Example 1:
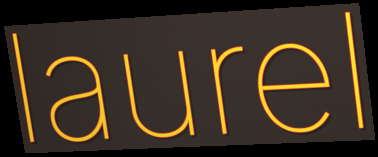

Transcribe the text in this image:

laurel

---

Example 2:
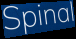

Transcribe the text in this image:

Spinal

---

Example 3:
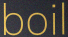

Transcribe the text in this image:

boil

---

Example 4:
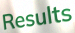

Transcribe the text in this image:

Results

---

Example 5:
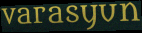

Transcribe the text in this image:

varasyun